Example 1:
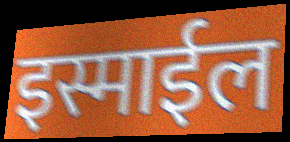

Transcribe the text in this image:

इस्माईल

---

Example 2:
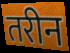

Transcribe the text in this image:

तरीन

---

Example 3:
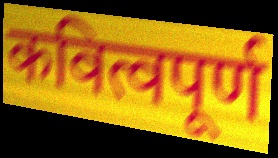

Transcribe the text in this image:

कवित्वपूर्ण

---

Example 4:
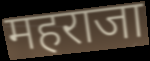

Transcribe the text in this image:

महराजा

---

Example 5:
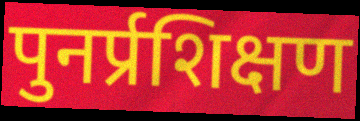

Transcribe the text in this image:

पुनर्प्रशिक्षण